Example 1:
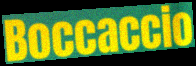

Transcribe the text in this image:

Boccaccio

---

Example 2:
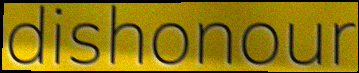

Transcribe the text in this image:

dishonour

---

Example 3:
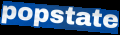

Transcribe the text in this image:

popstate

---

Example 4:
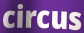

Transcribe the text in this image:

circus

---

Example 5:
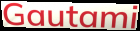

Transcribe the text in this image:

Gautami